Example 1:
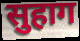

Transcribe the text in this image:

सुहाग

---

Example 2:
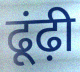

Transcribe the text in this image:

ढूंढ़ी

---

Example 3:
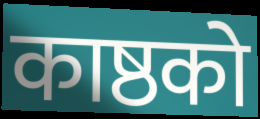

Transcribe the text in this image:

काष्ठको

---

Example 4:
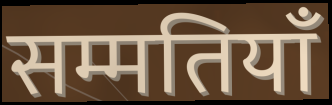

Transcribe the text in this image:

सम्मतियाँ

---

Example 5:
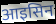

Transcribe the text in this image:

आइसिन